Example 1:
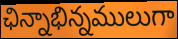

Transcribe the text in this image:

ఛిన్నాభిన్నములుగా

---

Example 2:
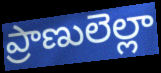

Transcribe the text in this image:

ప్రాణులెల్లా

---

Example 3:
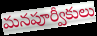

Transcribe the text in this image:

మనపూర్వీకులు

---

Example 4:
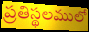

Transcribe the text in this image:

ప్రతిస్థలములో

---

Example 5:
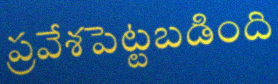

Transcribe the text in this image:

ప్రవేశపెట్టబడింది